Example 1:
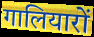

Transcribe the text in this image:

गालियारों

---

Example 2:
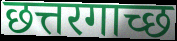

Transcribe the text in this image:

छत्तरगाच्छ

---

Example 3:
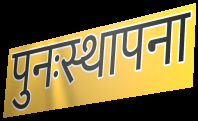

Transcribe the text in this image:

पुनःस्थापना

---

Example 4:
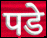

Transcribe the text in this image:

पडे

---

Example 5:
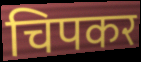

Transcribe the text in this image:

चिपकर